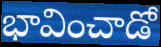
భావించాడో